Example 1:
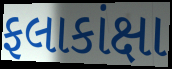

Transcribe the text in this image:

ફલાકાંક્ષા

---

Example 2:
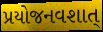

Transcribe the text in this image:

પ્રયોજનવશાત્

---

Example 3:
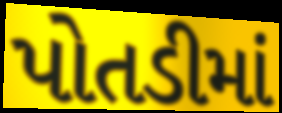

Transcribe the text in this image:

પોતડીમાં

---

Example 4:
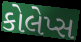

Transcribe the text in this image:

કોલેપ્સ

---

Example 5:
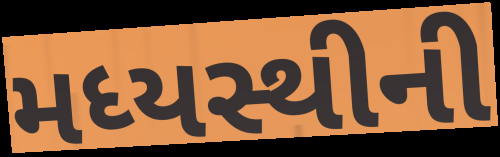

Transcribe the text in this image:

મધ્યસ્થીની